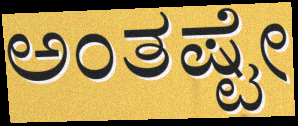
ಅಂತಷ್ಟೇ